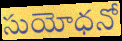
సుయోధనో